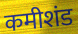
कमीशंड